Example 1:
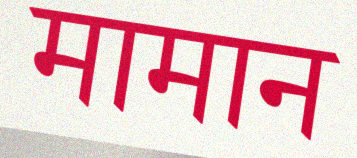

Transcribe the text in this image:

मामान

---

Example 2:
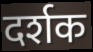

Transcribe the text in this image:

दर्शक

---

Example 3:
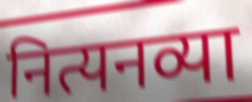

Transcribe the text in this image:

नित्यनव्या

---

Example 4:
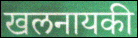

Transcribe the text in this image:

खलनायकी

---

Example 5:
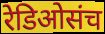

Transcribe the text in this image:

रेडिओसंच